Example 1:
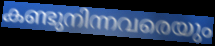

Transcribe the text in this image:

കണ്ടുനിന്നവരെയും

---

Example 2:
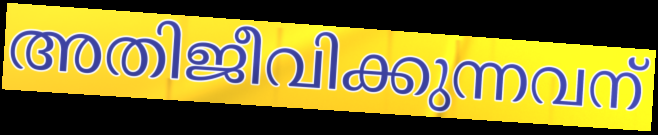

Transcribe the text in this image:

അതിജീവിക്കുന്നവന്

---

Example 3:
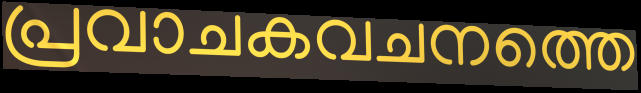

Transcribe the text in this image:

പ്രവാചകവചനത്തെ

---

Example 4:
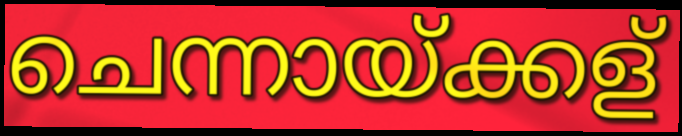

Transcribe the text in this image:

ചെന്നായ്ക്കള്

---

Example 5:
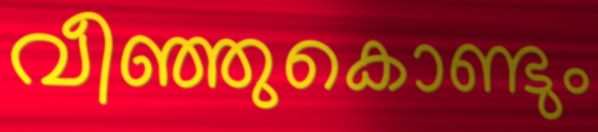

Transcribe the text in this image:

വീഞ്ഞുകൊണ്ടും